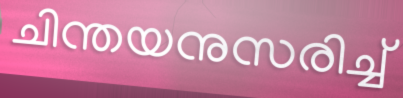
ചിന്തയനുസരിച്ച്